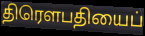
திரெளபதியைப்